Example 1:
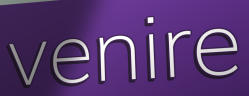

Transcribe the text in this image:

venire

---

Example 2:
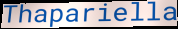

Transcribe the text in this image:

Thapariella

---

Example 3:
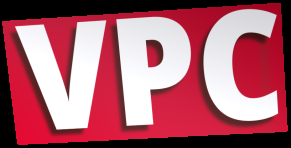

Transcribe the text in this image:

VPC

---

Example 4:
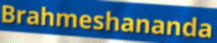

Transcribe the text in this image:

Brahmeshananda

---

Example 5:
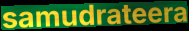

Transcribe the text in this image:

samudrateera